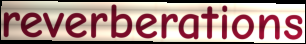
reverberations